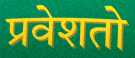
प्रवेशतो